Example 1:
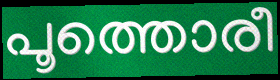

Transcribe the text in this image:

പൂത്തൊരീ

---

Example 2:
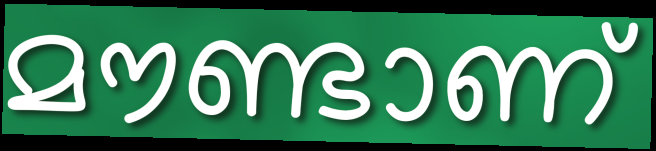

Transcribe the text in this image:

മൗണ്ടാണ്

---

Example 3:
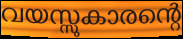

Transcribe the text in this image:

വയസ്സുകാരന്റെ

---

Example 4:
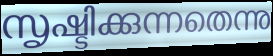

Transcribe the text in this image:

സൃഷ്ടിക്കുന്നതെന്നു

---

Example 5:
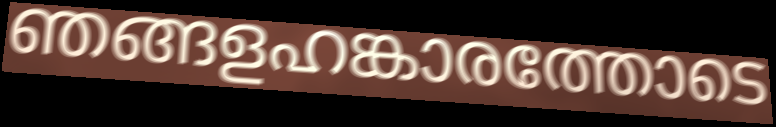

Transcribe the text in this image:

ഞങ്ങളഹങ്കാരത്തോടെ